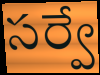
సర్వే